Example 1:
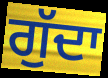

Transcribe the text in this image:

ਗੁੱਦਾ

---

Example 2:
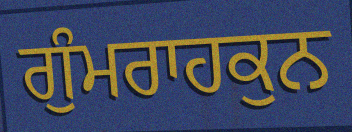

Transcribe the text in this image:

ਗੁੰਮਰਾਹਕੁਨ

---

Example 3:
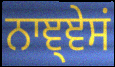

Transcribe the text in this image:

ਨਾਞ੍ਞੇਸਂ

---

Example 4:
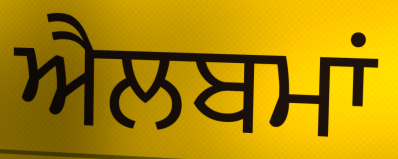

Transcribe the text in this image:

ਐਲਬਮਾਂ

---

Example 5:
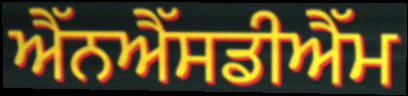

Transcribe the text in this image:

ਐੱਨਐੱਸਡੀਐੱਮ